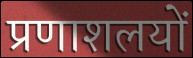
प्रणाशलयों